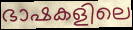
ഭാഷകളിലെ